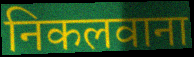
निकलवाना